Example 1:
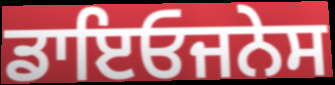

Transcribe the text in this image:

ਡਾਇਓਜਨੇਸ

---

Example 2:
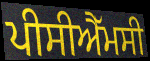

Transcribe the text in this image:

ਪੀਸੀਐੱਮਸੀ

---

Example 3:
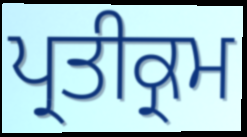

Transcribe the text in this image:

ਪ੍ਰਤੀਕ੍ਰਮ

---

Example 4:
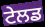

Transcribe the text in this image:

ਟੇਲਡ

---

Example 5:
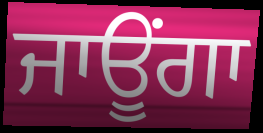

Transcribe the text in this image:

ਜਾਊਂਗਾ